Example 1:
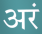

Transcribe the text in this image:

अरं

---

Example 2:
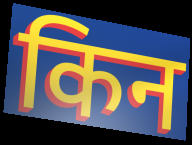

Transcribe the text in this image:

किन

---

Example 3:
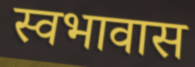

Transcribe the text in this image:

स्वभावास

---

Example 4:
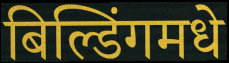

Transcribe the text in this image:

बिल्डिंगमधे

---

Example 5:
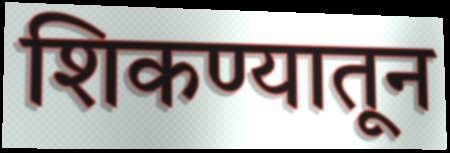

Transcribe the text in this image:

शिकण्यातून